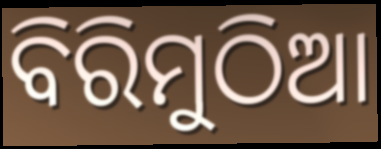
ବିରିମୁଠିଆ